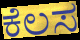
ಕೆಲಸ